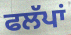
ਫਲੱਪਾਂ